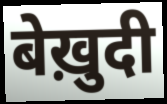
बेख़ुदी